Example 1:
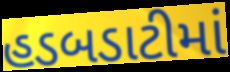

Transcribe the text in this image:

હડબડાટીમાં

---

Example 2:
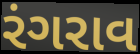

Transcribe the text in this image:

રંગરાવ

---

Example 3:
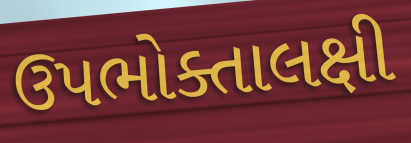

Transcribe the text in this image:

ઉપભોક્તાલક્ષી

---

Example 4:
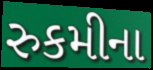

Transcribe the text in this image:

રુકમીના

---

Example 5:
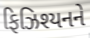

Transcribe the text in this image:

ફિઝિશ્યનને